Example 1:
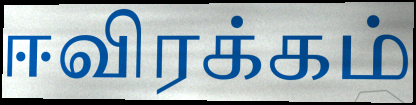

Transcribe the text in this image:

ஈவிரக்கம்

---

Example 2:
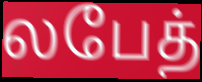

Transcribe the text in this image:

லபேத்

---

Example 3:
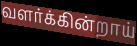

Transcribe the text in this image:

வளர்க்கின்றாய்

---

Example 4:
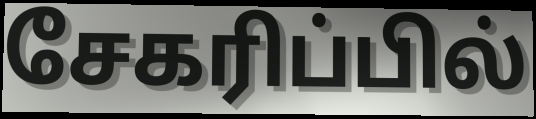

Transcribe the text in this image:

சேகரிப்பில்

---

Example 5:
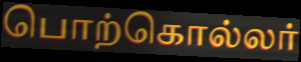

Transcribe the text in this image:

பொற்கொல்லர்